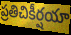
ప్రతిచికీర్షయా